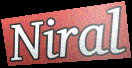
Niral